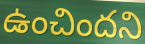
ఉంచిందని